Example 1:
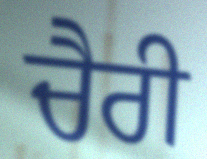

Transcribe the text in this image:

ਚੈਰੀ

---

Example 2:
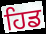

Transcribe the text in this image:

ਹਿਡ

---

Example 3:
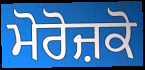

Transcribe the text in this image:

ਮੋਰੋਜ਼ਕੋ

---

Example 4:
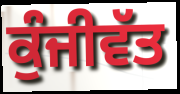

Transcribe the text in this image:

ਕੁੰਜੀਵੱਤ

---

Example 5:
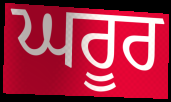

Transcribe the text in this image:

ਘਰੂਰ